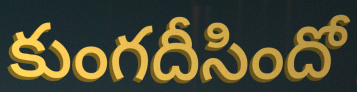
కుంగదీసిందో